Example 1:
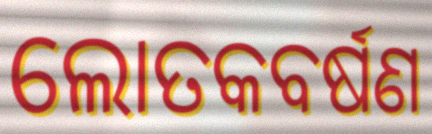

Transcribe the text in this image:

ଲୋତକବର୍ଷଣ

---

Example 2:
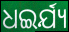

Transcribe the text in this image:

ଧଇର୍ଯ୍ୟ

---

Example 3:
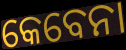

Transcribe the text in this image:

କେବେନା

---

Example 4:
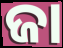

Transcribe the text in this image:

ଜା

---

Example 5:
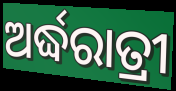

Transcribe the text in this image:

ଅର୍ଦ୍ଧରାତ୍ରୀ